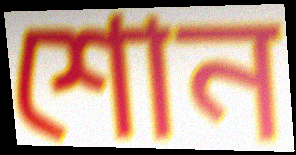
শোন